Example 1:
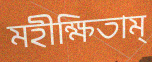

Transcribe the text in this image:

মহীক্ষিতাম্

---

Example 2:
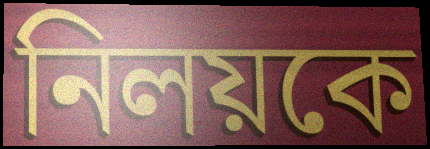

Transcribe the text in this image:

নিলয়কে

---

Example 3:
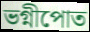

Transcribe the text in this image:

ভগ্নীপোত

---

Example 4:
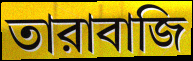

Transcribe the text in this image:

তারাবাজি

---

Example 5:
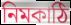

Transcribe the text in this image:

নিমকাঠি